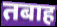
तबाह